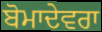
ਬੋਮਾਦੇਵਰਾ